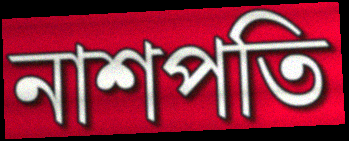
নাশপতি